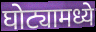
घोट्यामध्ये